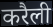
करैली